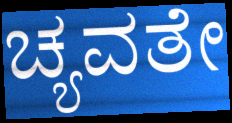
ಚ್ಯವತೇ